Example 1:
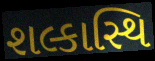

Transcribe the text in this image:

શલ્કાસ્થિ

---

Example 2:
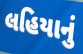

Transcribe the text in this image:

લહિયાનું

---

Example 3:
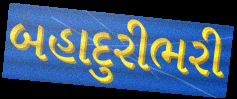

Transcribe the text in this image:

બહાદુરીભરી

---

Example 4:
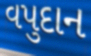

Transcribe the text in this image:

વપુદાન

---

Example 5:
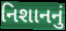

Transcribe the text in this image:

નિશાનનું